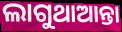
ଲାଗୁଥାଆନ୍ତା